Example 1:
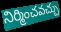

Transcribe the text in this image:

నిర్మించవచ్చు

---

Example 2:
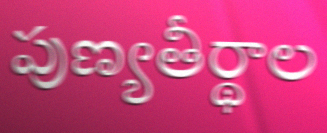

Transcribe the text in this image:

పుణ్యతీర్థాల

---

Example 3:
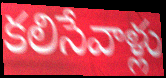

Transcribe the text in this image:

కలిసేవాళ్లు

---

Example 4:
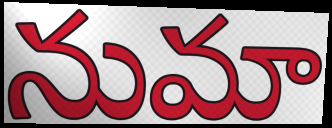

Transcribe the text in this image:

నుమా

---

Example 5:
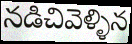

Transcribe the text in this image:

నడిచివెళ్ళిన